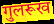
गुलरूख